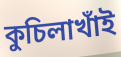
কুচিলাখাঁই